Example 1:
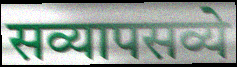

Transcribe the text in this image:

सव्यापसव्ये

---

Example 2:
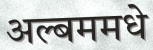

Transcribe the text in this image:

अल्बममधे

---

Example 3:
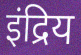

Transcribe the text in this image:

इंद्रिय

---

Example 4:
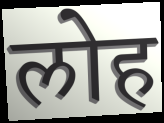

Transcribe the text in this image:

लोह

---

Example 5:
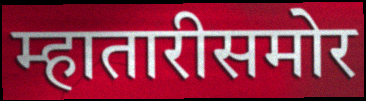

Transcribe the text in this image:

म्हातारीसमोर